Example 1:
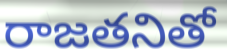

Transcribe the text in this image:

రాజతనితో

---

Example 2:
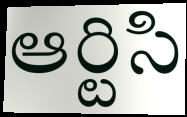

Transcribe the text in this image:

ఆర్టిసి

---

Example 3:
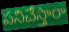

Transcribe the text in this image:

పనిచేస్తారా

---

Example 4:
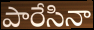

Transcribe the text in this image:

పారేసినా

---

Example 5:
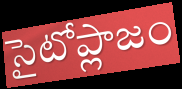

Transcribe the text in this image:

సైటోప్లాజం